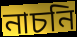
নাচনি